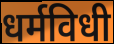
धर्मविधी